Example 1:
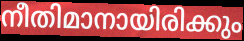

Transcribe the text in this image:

നീതിമാനായിരിക്കും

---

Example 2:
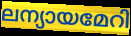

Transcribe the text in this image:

ലന്യായമേറി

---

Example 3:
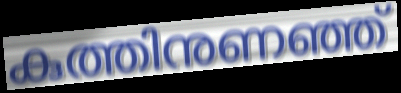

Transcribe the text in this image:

കുത്തിനുണഞ്ഞ്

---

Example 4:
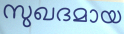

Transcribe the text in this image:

സുഖദമായ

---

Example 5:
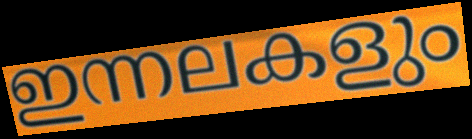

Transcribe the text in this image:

ഇന്നലകളും